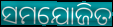
ସମଯୋଜିତ